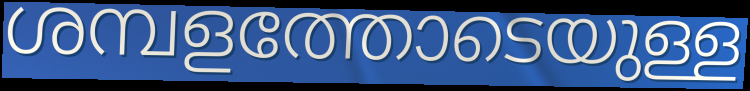
ശമ്പളത്തോടെയുള്ള